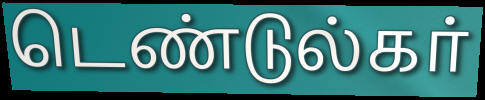
டெண்டுல்கர்